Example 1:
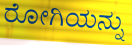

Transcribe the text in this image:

ರೋಗಿಯನ್ನು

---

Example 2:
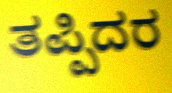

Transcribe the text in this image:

ತಪ್ಪಿದರ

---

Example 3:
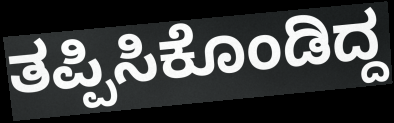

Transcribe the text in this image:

ತಪ್ಪಿಸಿಕೊಂಡಿದ್ದ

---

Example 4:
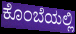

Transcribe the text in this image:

ಕೊಂಬೆಯಲ್ಲಿ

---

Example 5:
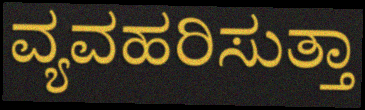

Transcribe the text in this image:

ವ್ಯವಹರಿಸುತ್ತಾ